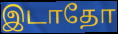
இடாதோ